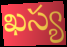
ఖస్య